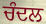
ਚੰਦਲ